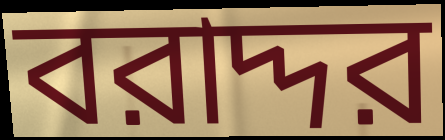
বরাদ্দর